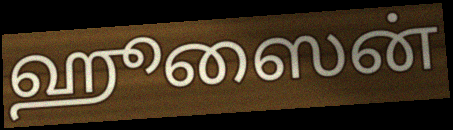
ஹூஸைன்